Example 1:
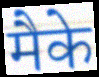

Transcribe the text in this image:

मैके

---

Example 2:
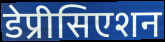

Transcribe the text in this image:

डेप्रीसिएशन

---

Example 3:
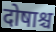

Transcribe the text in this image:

दोषाश्च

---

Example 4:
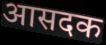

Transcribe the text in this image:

आसदक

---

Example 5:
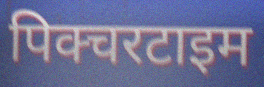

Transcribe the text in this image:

पिक्चरटाइम